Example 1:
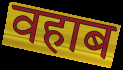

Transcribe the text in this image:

वहाब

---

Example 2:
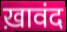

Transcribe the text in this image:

ख़ावंद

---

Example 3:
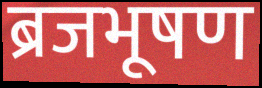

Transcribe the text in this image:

ब्रजभूषण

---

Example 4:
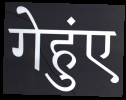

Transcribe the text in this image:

गेहुंए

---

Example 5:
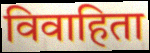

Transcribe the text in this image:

विवाहिता